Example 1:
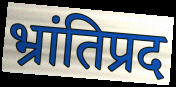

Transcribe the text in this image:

भ्रांतिप्रद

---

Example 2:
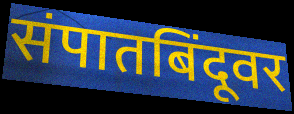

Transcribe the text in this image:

संपातबिंदूवर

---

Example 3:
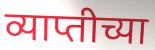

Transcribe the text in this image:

व्याप्तीच्या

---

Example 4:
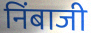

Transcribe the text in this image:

निंबाजी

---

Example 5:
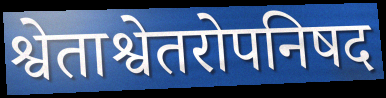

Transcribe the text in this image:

श्वेताश्वेतरोपनिषद